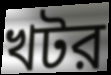
খটর